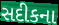
સદીકના